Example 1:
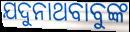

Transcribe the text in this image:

ଯଦୁନାଥବାବୁଙ୍କ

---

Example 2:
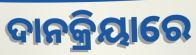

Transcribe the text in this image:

ଦାନକ୍ରିୟାରେ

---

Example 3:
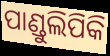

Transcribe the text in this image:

ପାଣ୍ଡୁଲିପିକି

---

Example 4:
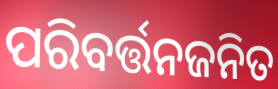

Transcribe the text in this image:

ପରିବର୍ତ୍ତନଜନିତ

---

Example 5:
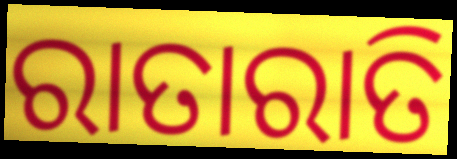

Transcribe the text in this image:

ରାତାରାତି